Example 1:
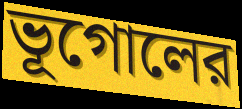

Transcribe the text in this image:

ভূগোলের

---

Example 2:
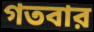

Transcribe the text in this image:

গতবার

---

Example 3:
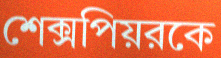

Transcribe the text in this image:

শেক্সপিয়রকে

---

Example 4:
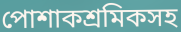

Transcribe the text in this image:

পোশাকশ্রমিকসহ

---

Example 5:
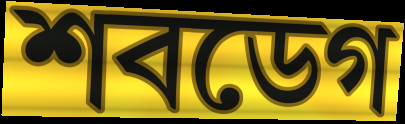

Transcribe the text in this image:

শবডেগ